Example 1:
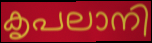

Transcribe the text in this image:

കൃപലാനി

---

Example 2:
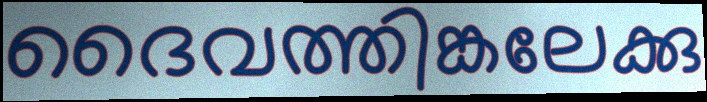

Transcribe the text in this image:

ദൈവത്തിങ്കലേക്കു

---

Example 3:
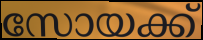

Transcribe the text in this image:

സോയക്ക്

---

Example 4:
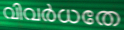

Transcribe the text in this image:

വിവർധതേ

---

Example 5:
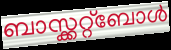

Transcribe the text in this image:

ബാസ്ക്കറ്റ്ബോൾ